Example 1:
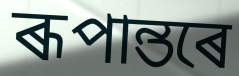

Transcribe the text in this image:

ৰূপান্তৰে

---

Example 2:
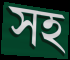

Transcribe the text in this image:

সহ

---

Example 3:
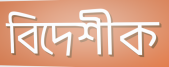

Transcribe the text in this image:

বিদেশীক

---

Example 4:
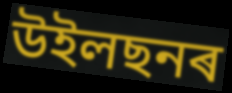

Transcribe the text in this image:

উইলছনৰ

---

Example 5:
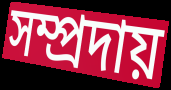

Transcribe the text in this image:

সম্প্ৰদায়